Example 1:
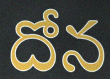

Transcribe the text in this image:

దోన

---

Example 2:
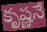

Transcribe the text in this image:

కృష్ణనే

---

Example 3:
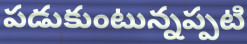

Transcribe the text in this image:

పడుకుంటున్నప్పటి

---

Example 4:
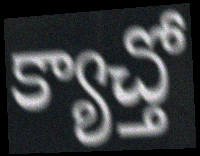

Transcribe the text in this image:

క్యాచ్తో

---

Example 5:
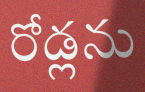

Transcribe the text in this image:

రోడ్లను